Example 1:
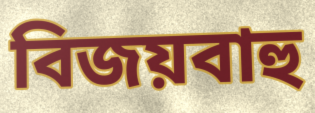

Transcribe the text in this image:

বিজয়বাহু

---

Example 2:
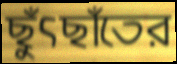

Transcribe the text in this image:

ছুঁৎছাঁতের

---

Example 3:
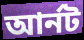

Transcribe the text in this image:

আর্নট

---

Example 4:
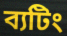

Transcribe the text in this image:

ব্যটিং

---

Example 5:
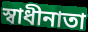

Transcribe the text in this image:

স্বাধীনাতা